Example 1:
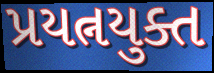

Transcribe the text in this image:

પ્રયત્નયુક્ત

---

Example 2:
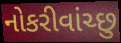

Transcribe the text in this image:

નોકરીવાંચ્છુ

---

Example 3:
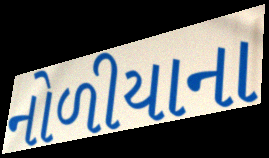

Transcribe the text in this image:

નોળીયાના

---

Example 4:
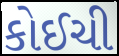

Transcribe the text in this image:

કોઈચી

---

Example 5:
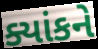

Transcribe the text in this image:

ક્યાંકને